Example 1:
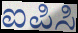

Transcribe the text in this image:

ಐಪಿಸಿ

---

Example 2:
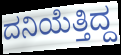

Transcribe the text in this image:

ದನಿಯೆತ್ತಿದ್ದ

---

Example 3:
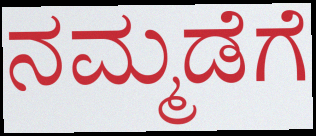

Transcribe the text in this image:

ನಮ್ಮಡೆಗೆ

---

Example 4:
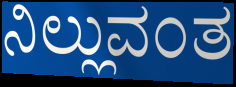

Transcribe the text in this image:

ನಿಲ್ಲುವಂತ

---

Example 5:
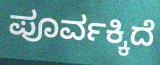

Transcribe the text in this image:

ಪೂರ್ವಕ್ಕಿದೆ